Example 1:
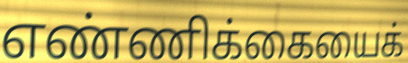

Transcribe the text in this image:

எண்ணிக்கையைக்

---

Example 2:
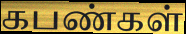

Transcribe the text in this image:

கபண்கள்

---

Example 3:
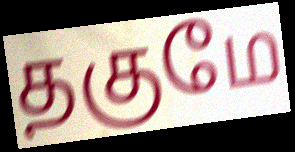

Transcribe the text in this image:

தகுமே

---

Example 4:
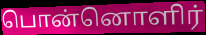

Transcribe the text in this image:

பொன்னொளிர்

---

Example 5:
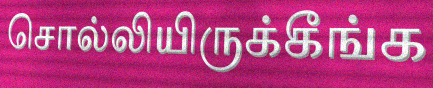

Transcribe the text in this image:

சொல்லியிருக்கீங்க